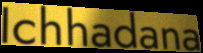
Ichhadana